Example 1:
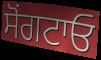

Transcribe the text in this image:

ਸੋਂਗਟਾਓ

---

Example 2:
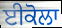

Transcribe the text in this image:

ਈਕੋਲਾ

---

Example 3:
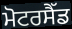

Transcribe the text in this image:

ਮੋਟਰਸੈੱਡ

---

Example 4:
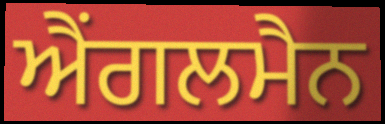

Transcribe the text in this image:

ਐਂਗਲਮੈਨ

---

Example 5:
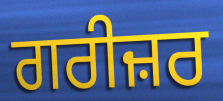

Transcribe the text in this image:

ਗਰੀਜ਼ਰ